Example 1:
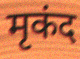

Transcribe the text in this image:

मृकंद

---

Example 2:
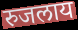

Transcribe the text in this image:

रुजलाय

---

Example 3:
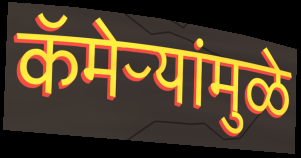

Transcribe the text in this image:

कॅमेऱ्यांमुळे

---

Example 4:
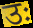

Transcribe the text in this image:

उः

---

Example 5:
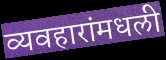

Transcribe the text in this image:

व्यवहारांमधली